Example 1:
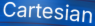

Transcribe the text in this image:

Cartesian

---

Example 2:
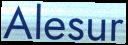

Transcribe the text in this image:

Alesur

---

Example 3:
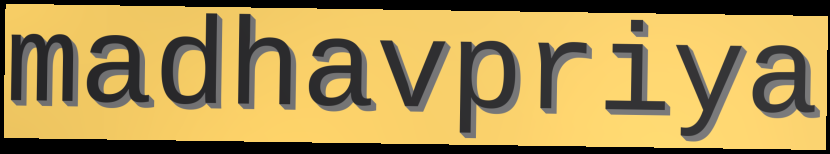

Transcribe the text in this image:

madhavpriya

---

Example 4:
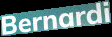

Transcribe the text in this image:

Bernardi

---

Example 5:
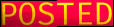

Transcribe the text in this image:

POSTED